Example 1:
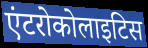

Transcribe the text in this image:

एंटरोकोलाइटिस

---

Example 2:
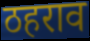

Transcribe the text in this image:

ठहराव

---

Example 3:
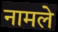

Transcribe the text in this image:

नामले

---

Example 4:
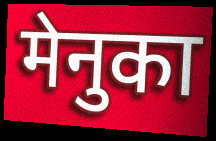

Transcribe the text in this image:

मेनुका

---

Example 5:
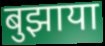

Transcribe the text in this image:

बुझाया